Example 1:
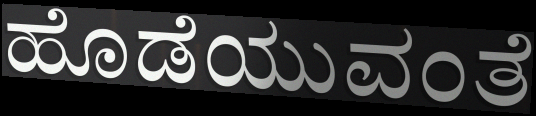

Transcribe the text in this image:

ಹೊಡೆಯುವಂತೆ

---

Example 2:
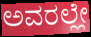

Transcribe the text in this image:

ಅವರಲ್ಲೇ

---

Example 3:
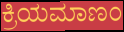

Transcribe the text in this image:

ಕ್ರಿಯಮಾಣಂ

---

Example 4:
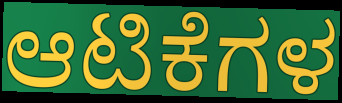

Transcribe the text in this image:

ಆಟಿಕೆಗಳ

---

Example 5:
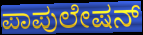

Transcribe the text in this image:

ಪಾಪುಲೇಷನ್